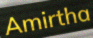
Amirtha